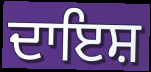
ਦਾਇਸ਼